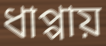
ধাপ্পায়